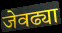
जेवढ्या